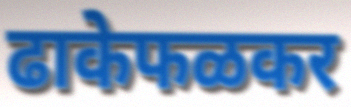
ढाकेफळकर